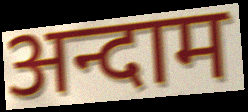
अन्दाम